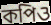
কপিও